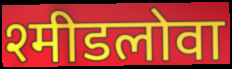
श्मीडलोवा